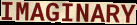
IMAGINARY